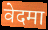
वेदमा